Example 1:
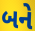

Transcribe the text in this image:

બને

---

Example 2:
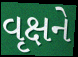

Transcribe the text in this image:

વૃક્ષને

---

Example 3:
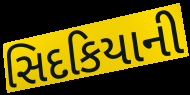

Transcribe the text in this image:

સિદકિયાની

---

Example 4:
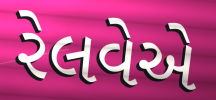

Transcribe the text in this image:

રેલવેએ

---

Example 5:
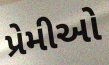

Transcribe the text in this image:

પ્રેમીઓ